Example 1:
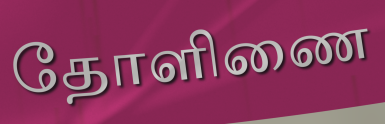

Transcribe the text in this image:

தோளிணை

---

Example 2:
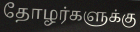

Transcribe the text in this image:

தோழர்களுக்கு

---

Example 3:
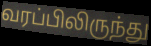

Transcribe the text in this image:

வரப்பிலிருந்து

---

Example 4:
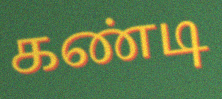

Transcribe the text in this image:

கண்டி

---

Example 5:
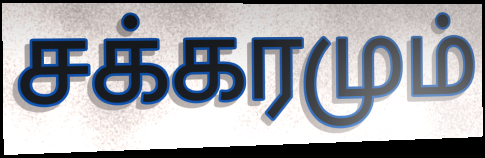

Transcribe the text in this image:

சக்கரமும்